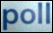
poll